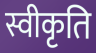
स्वीकृति